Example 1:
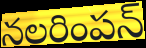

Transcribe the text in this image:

నలరింపన్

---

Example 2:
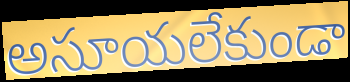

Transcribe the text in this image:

అసూయలేకుండా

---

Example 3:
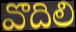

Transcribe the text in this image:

వొదిలి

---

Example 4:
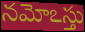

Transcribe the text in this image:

నమోఽస్తు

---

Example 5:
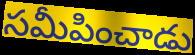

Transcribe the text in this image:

సమీపించాడు